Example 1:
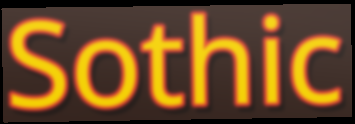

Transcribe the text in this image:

Sothic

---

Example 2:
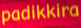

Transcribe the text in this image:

padikkira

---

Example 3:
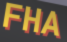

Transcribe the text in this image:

FHA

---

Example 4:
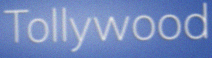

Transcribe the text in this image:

Tollywood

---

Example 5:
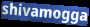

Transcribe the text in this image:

shivamogga